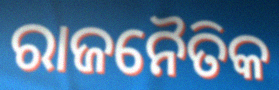
ରାଜନୈତିକ